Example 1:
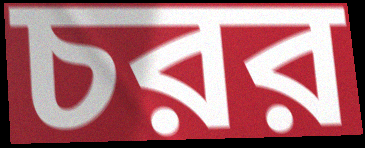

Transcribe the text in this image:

চরর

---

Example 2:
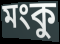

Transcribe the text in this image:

মংকু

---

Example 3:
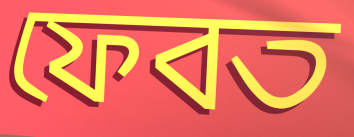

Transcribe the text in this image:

ফেবত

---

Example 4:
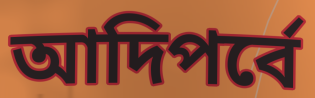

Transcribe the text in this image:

আদিপর্বে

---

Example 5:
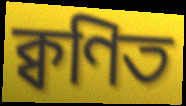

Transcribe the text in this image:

ক্বণিত